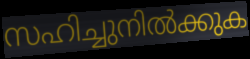
സഹിച്ചുനിൽക്കുക